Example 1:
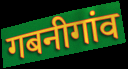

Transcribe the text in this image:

गबनीगांव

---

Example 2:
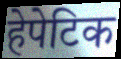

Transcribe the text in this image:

हेपेटिक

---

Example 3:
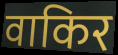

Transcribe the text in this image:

वाकिर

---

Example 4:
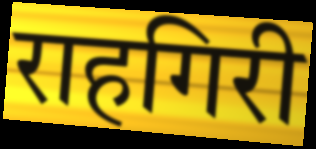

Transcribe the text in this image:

राहगिरी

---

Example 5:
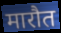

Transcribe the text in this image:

मारौत